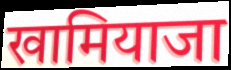
खामियाजा